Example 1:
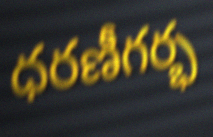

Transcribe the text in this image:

ధరణీగర్భ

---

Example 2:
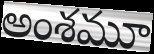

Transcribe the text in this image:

అంశమూ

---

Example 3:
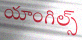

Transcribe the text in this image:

యాంగిల్స్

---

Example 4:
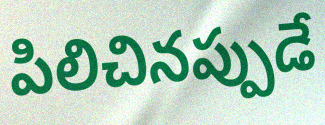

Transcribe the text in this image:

పిలిచినప్పుడే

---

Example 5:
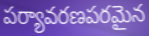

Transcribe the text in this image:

పర్యావరణపరమైన